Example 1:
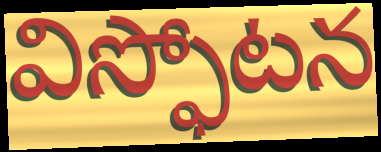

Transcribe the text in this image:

విస్ఫోటన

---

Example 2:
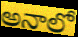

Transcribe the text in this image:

అనాలో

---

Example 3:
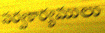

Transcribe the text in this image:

సర్వకార్యములు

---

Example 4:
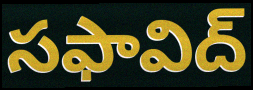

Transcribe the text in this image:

సఫావిద్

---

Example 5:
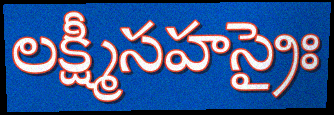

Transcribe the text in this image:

లక్ష్మీసహస్రైః